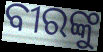
ବୀରଙ୍କୁ